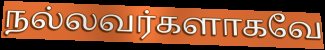
நல்லவர்களாகவே